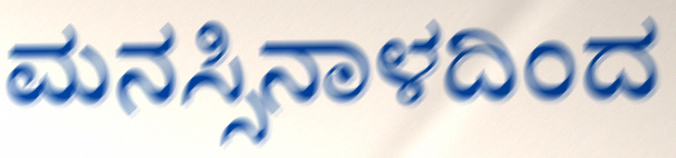
ಮನಸ್ಸಿನಾಳದಿಂದ